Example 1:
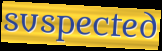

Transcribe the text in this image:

suspected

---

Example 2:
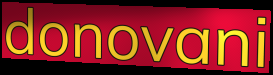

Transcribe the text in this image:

donovani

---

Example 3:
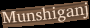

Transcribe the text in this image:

Munshiganj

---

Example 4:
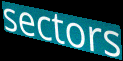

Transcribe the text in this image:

sectors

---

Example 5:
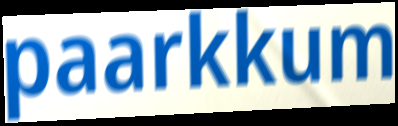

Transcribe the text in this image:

paarkkum